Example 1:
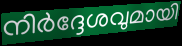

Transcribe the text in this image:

നിർദ്ദേശവുമായി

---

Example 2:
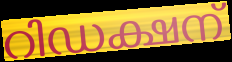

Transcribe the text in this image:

റിഡക്ഷന്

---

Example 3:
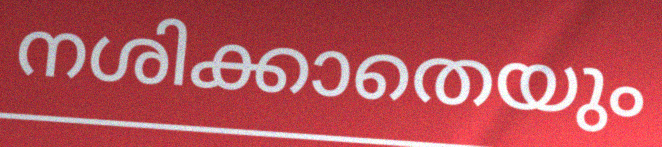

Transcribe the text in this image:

നശിക്കാതെയും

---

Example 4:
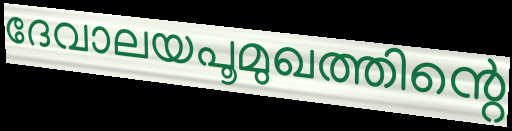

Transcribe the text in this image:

ദേവാലയപൂമുഖത്തിന്റെ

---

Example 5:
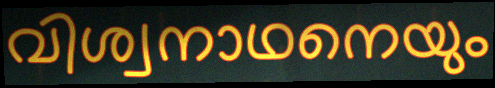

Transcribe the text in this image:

വിശ്വനാഥനെയും